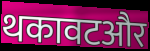
थकावटऔर